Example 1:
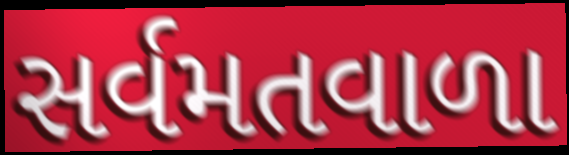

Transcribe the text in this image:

સર્વમતવાળા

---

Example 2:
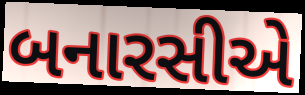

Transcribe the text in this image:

બનારસીએ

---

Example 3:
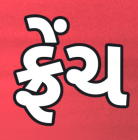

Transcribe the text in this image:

ફ્રેંચ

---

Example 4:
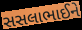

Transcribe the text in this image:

સસલાભાઈને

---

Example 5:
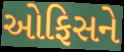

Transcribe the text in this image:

ઓફિસને